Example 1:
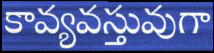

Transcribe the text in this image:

కావ్యవస్తువుగా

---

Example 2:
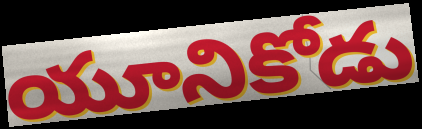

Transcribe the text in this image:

యూనికోడు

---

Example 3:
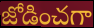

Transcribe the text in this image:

జోడించగా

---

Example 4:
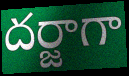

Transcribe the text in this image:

దర్జాగా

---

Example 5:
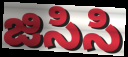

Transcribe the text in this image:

జిసిసి